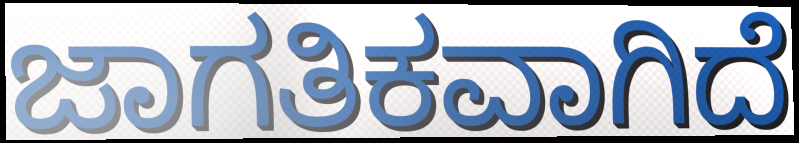
ಜಾಗತಿಕವಾಗಿದೆ